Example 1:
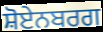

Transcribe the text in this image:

ਸ਼ੋਏਨਬਰਗ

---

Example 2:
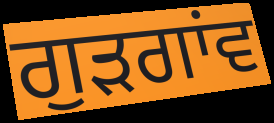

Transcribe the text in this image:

ਗੁੜਗਾਂਵ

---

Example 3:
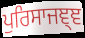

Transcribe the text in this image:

ਪੁਰਿਸਾਜਞ੍ਞ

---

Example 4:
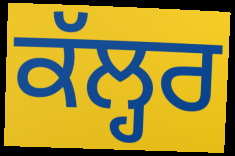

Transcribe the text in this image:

ਕੱਲ੍ਹਰ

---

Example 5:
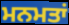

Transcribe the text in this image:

ਮਨਮਤਾਂ